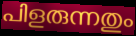
പിളരുന്നതും